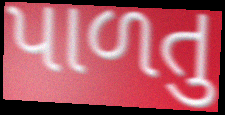
પાળતુ